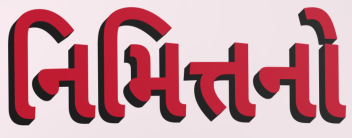
નિમિત્તનો